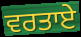
ਵਰਤਾਏ